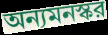
অন্যমনস্কর